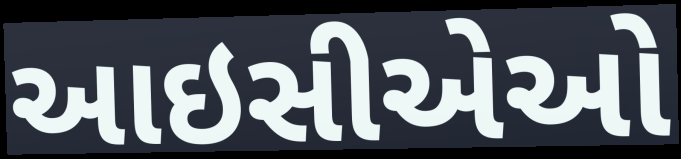
આઇસીએઓ